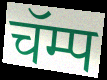
चॅम्प